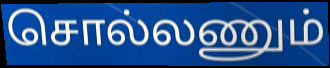
சொல்லணும்